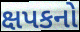
ક્ષપકનો